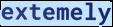
extemely